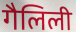
गैलिली